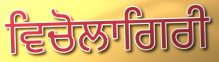
ਵਿਚੋਲਾਗਿਰੀ